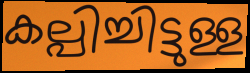
കല്പിച്ചിട്ടുള്ള